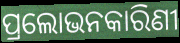
ପ୍ରଲୋଭନକାରିଣୀ